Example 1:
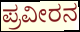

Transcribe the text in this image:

ಪ್ರವೀರನ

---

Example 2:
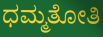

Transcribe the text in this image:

ಧಮ್ಮತೋತಿ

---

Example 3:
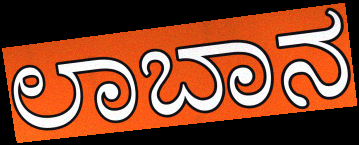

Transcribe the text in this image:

ಲಾಬಾನ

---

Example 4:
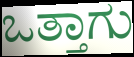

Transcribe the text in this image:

ಒತ್ತಾಗು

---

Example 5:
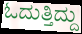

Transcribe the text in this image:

ಓದುತ್ತಿದ್ದು